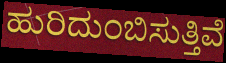
ಹುರಿದುಂಬಿಸುತ್ತಿವೆ